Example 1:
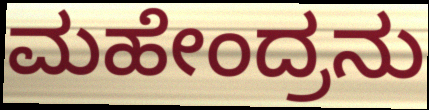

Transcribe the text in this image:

ಮಹೇಂದ್ರನು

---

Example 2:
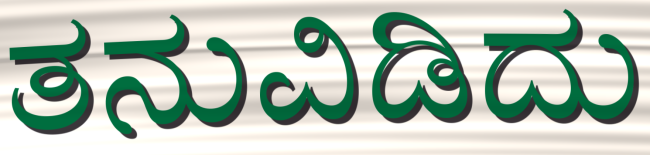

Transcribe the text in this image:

ತನುವಿಡಿದು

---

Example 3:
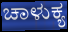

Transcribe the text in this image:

ಚಾಳುಕ್ಯ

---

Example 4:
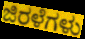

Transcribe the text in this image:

ಜಿರಳೆಗಳು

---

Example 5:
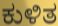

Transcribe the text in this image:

ಕುಳಿತ